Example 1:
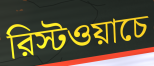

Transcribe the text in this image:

রিস্টওয়াচে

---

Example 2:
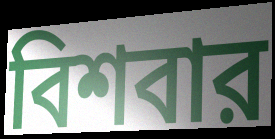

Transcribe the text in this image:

বিশবার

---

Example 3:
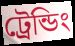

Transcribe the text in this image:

ট্রেন্ডিং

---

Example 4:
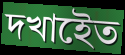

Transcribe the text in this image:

দখাইেত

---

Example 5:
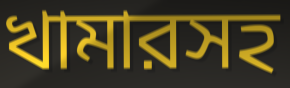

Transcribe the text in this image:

খামারসহ